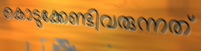
കൊടുക്കേണ്ടിവരുന്നത്